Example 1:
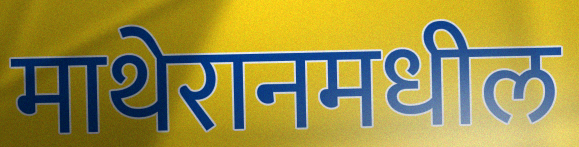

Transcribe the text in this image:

माथेरानमधील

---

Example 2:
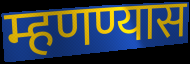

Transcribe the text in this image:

म्हणण्यास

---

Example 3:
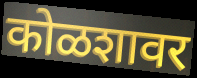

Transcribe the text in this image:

कोळशावर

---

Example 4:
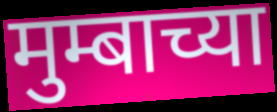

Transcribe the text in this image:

मुम्बाच्या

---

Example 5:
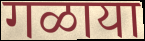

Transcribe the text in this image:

गळाया